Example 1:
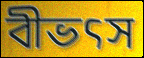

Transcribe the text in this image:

বীভৎস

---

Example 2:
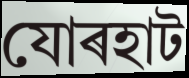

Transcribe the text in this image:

যোৰহাট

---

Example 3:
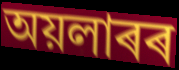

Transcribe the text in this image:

অয়লাৰৰ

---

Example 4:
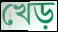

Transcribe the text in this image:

খেড়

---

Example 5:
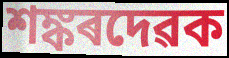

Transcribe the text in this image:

শঙ্কৰদেৱক